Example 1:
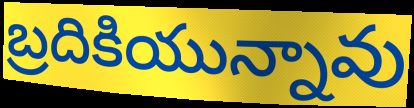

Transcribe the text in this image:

బ్రదికియున్నావు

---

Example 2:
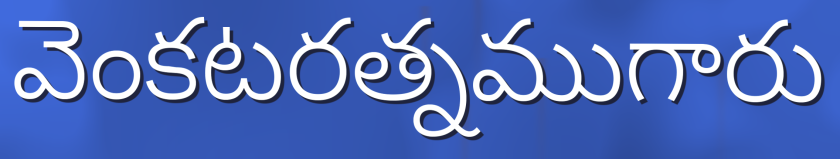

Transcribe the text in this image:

వెంకటరత్నముగారు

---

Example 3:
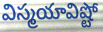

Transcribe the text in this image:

విస్మయావిష్టో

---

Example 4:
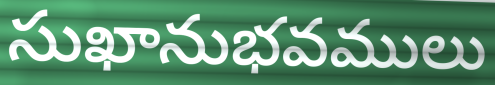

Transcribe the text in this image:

సుఖానుభవములు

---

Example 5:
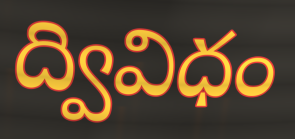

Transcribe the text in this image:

ద్వివిధం